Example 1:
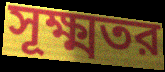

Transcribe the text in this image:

সূক্ষ্মতর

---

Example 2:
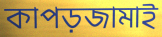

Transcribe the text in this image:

কাপড়জামাই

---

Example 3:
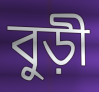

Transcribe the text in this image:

বুড়ী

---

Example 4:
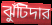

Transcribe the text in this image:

ঝুঁটিদার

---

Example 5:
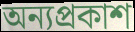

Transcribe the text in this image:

অন্যপ্রকাশ